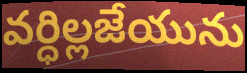
వర్ధిల్లజేయును